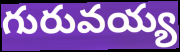
గురువయ్య